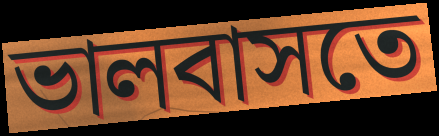
ভালবাসতে